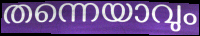
തന്നെയാവും